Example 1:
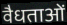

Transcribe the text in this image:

वैधताओं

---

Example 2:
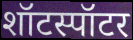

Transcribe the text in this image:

शॉटस्पॉटर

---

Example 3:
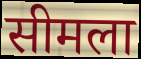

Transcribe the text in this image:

सीमला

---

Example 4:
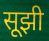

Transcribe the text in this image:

सूझी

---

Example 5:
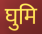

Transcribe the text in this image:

घुमि